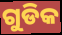
ଗୁଡିକ